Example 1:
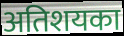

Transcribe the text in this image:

अतिशयका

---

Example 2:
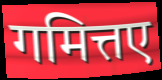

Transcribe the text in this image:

गमित्तए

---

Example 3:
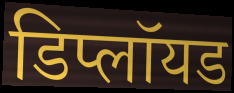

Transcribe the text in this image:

डिप्लॉयड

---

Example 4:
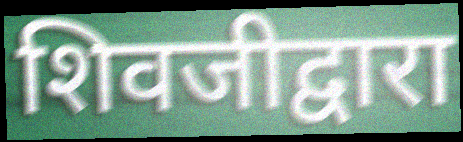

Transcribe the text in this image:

शिवजीद्वारा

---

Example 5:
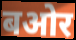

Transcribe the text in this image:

बओर